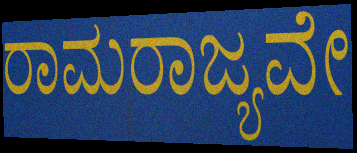
ರಾಮರಾಜ್ಯವೇ